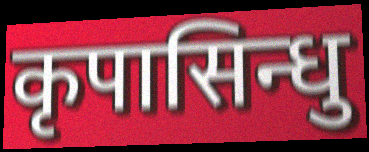
कृपासिन्धु